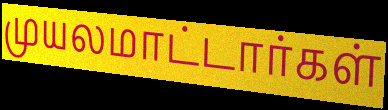
முயலமாட்டார்கள்